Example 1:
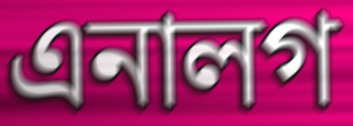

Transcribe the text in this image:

এনালগ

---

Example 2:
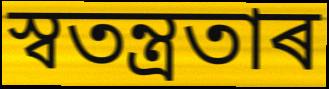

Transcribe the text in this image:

স্বতন্ত্ৰতাৰ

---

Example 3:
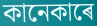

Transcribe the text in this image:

কানেকাৰে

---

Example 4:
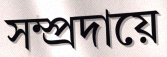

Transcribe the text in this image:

সম্প্ৰদায়ে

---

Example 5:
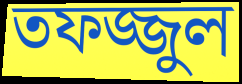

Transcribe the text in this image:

তফজ্জুল